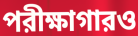
পরীক্ষাগারও